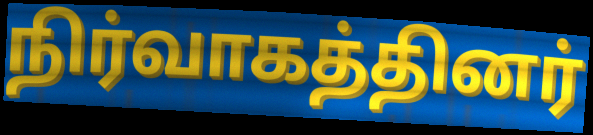
நிர்வாகத்தினர்